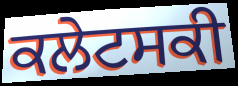
ਕਲੇਟਸਕੀ